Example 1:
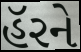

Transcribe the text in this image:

હૅરને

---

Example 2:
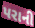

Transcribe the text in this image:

પરાની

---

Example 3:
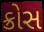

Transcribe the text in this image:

ક્રોસ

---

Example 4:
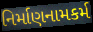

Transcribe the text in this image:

નિર્માણનામકર્મ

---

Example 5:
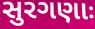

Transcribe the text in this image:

સુરગણાઃ